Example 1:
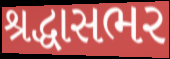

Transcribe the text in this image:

શ્રદ્ધાસભર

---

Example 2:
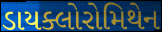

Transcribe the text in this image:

ડાયક્લોરોમિથેન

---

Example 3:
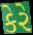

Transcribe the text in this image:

કેરે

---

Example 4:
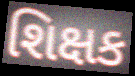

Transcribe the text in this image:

શિક્ષક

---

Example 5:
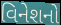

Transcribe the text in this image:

વિનેશનો